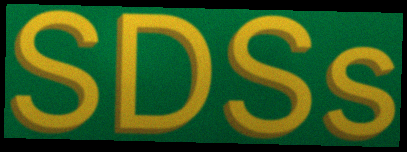
SDSs